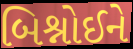
બિશ્નોઈને